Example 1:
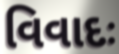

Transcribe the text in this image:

વિવાદઃ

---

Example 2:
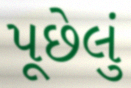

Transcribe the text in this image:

પૂછેલું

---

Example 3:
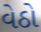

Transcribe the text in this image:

વેઠો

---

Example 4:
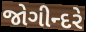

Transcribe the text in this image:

જોગીન્દરે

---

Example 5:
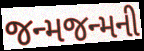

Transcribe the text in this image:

જન્મજન્મની